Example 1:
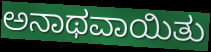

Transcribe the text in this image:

ಅನಾಥವಾಯಿತು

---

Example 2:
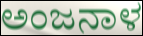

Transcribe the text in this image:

ಅಂಜನಾಳ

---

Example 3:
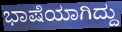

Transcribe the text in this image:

ಭಾಷೆಯಾಗಿದ್ದು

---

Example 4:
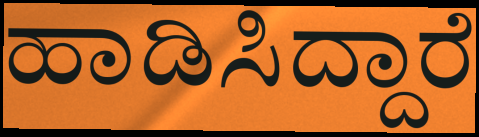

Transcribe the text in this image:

ಹಾಡಿಸಿದ್ದಾರೆ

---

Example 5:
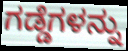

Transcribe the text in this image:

ಗಡ್ಡೆಗಳನ್ನು